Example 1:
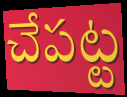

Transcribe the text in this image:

చేపట్ట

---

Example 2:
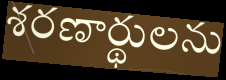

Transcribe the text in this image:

శరణార్థులను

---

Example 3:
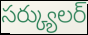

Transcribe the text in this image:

సర్క్యులర్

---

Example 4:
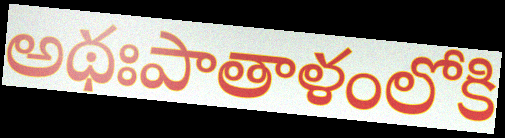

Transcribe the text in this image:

అథఃపాతాళంలోకి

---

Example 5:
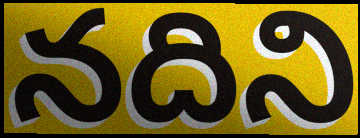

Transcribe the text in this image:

నదిని